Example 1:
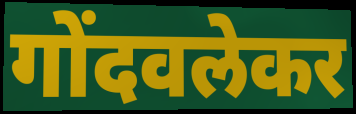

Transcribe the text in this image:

गोंदवलेकर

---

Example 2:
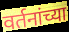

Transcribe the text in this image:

वर्तनांच्या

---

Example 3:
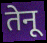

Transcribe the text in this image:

तेनू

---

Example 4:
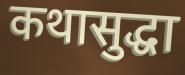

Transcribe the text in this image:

कथासुद्धा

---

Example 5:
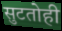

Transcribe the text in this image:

सुटतोही